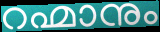
റഹ്മാനും